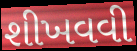
શીખવવી